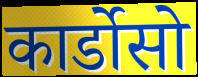
कार्डोसो